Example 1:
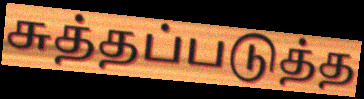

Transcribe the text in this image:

சுத்தப்படுத்த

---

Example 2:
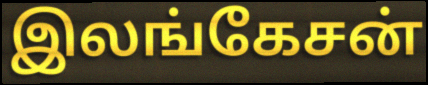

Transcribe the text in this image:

இலங்கேசன்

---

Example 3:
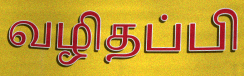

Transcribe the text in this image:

வழிதப்பி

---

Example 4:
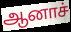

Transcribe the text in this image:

ஆனாச்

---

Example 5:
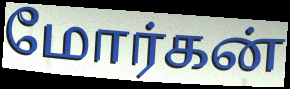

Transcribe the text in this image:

மோர்கன்